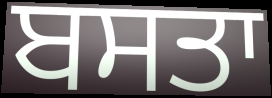
ਬਸਤਾ